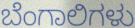
ಬೆಂಗಾಲಿಗಳು